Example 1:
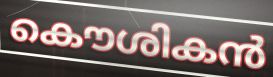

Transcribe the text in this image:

കൌശികൻ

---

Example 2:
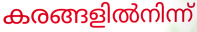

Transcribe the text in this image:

കരങ്ങളിൽനിന്ന്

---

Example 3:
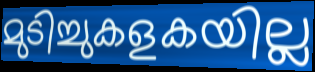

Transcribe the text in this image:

മുടിച്ചുകളകയില്ല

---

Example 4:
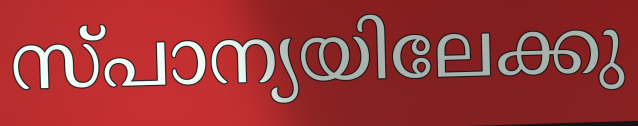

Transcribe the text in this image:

സ്പാന്യയിലേക്കു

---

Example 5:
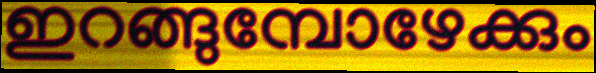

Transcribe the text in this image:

ഇറങ്ങുമ്പോഴേക്കും